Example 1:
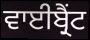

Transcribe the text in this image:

ਵਾਈਬ੍ਰੈਂਟ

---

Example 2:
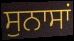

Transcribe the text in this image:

ਸੁਨਾਸਾਂ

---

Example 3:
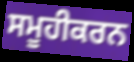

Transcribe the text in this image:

ਸਮੂਹੀਕਰਨ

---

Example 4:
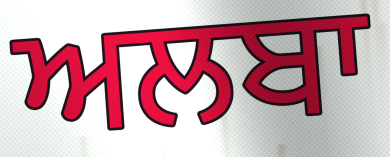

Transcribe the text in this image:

ਅਲਬਾ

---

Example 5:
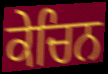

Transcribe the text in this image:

ਕੇਚਿਨ